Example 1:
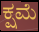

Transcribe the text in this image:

ಕ್ಷಮೆ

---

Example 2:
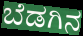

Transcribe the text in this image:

ಬೆಡಗಿನ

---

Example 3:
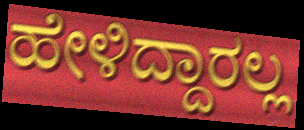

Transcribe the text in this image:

ಹೇಳಿದ್ದಾರಲ್ಲ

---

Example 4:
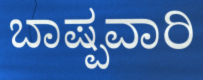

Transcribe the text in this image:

ಬಾಷ್ಪವಾರಿ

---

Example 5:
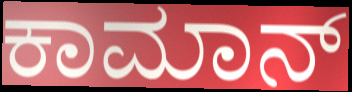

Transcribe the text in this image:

ಕಾಮಾನ್